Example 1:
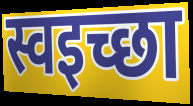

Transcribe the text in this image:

स्वइच्छा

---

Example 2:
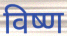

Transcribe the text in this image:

विष्ण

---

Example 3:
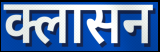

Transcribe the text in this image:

क्लासन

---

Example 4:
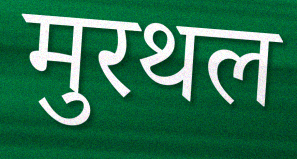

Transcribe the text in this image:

मुरथल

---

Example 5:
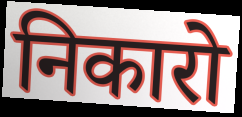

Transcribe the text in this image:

निकारो